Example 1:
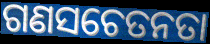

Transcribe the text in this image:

ଗଣସଚେତନତା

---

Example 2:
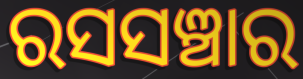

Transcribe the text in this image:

ରସସଞ୍ଚାର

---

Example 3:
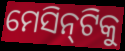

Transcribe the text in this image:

ମେସିନ୍‍ଟିକୁ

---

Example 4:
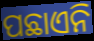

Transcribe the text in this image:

ପଛାଏନି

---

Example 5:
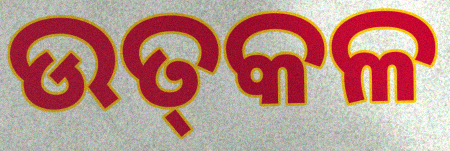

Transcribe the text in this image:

ଉତ୍‌କଳ